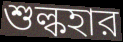
শুল্কহার